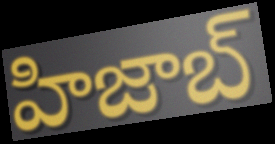
హిజాబ్